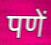
पणें